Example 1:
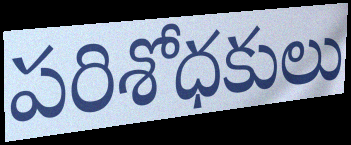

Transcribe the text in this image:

పరిశోధకులు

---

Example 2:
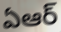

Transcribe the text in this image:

ఏఆర్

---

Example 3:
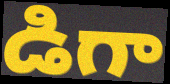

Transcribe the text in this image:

డిగా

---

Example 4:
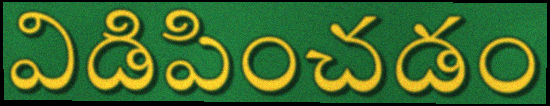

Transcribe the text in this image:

విడిపించడం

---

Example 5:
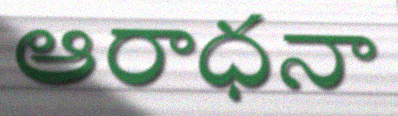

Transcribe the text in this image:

ఆరాధనా